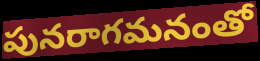
పునరాగమనంతో